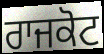
ਰਾਜਕੋਟ